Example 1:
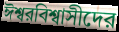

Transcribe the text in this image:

ঈশ্বরবিশ্বাসীদের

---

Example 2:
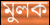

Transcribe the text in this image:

মুলক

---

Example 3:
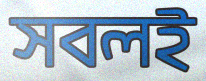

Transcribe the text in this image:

সবলই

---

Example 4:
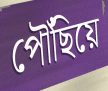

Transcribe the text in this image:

পৌঁছিয়ে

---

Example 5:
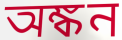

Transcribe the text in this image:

অঙ্কন